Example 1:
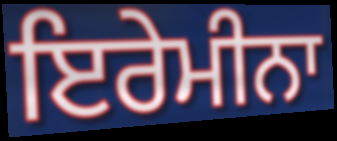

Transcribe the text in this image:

ਇਰੇਮੀਨਾ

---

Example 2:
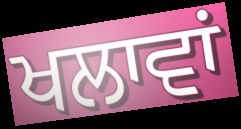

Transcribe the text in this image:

ਖਲਾਵਾਂ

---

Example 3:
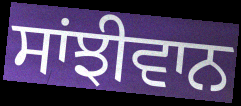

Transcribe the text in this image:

ਸਾਂਝੀਵਾਨ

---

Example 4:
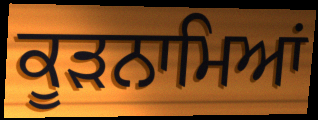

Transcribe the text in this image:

ਕੂੜਨਾਮਿਆਂ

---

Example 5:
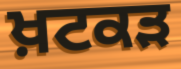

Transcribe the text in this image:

ਖ਼ਟਕੜ